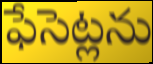
ఫేసెట్లను